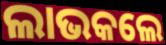
ଲାଭକଲେ